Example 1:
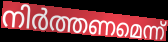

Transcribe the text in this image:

നിർത്തണമെന്ന്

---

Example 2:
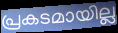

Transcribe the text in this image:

പ്രകടമായില്ല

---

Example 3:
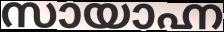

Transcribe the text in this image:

സായാഹ്ന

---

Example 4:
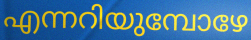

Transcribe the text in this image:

എന്നറിയുമ്പോഴേ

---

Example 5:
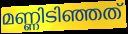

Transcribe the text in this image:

മണ്ണിടിഞ്ഞത്